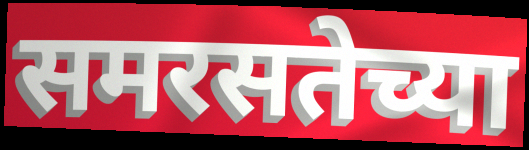
समरसतेच्या